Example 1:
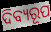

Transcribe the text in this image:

ଦିବ୍ୟରୂପ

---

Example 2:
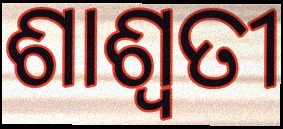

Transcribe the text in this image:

ଶାଶ୍ଵତୀ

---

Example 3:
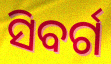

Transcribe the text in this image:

ସିବର୍ଗ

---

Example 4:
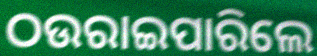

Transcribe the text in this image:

ଠଉରାଇପାରିଲେ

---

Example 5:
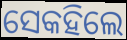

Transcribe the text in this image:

ସେକହିଲେ